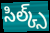
సిల్క్స్